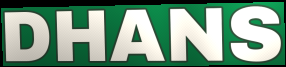
DHANS